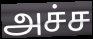
அச்ச